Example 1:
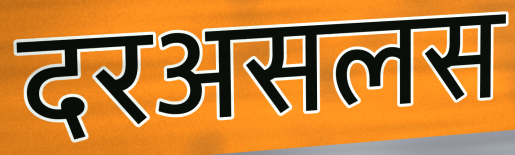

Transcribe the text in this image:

दरअसलस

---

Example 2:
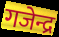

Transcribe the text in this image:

गजेन्द्र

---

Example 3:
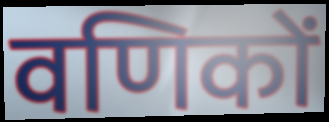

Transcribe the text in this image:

वणिकों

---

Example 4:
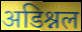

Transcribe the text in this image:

अडिश्नल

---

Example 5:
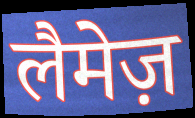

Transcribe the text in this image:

लैमेज़